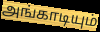
அங்காடியும்